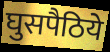
घुसपैठिये